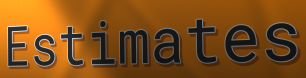
Estimates